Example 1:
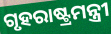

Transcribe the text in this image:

ଗୃହରାଷ୍ଟ୍ରମନ୍ତ୍ରୀ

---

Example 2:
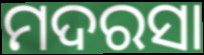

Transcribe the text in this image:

ମଦରସା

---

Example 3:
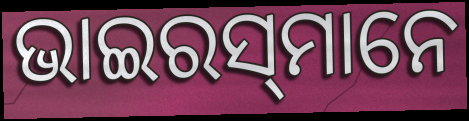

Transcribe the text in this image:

ଭାଇରସ୍‌ମାନେ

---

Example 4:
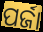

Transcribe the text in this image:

ପର୍ଜା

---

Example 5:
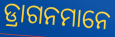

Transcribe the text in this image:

ଡ୍ରାଗନମାନେ